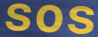
sos